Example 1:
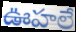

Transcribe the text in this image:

ఊహలే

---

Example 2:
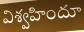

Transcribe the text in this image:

విశ్వహిందూ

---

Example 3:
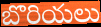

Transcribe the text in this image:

బొరియలు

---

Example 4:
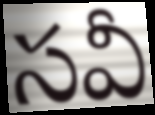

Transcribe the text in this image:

సవీ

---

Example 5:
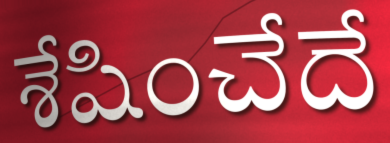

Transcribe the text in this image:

శేషించేదే